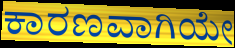
ಕಾರಣವಾಗಿಯೇ